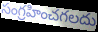
సంగ్రహించగలదు